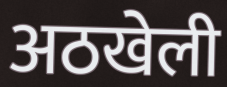
अठखेली